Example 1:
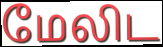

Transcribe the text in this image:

மேலிட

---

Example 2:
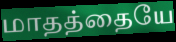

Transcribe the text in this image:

மாதத்தையே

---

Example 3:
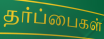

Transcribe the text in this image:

தர்ப்பைகள்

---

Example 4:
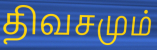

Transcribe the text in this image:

திவசமும்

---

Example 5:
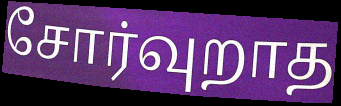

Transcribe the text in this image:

சோர்வுறாத